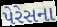
પેરેસના